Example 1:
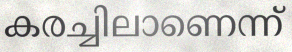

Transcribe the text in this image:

കരച്ചിലാണെന്ന്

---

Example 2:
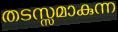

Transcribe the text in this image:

തടസ്സമാകുന്ന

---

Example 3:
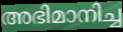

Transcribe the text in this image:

അഭിമാനിച്ച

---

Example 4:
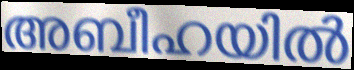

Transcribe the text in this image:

അബീഹയിൽ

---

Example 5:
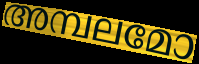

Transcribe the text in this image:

അമ്പലമോ